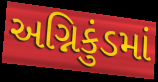
અગ્નિકુંડમાં